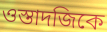
ওস্তাদজিকে